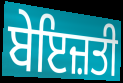
ਬੇਇਜ਼ਤੀ